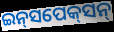
ଇନ୍‌ସପେକ୍‌ସନ୍